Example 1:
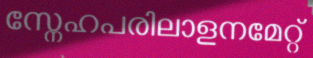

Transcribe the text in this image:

സ്നേഹപരിലാളനമേറ്റ്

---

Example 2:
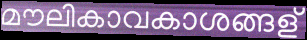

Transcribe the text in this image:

മൗലികാവകാശങ്ങള്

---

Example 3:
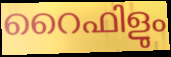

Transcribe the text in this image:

റൈഫിളും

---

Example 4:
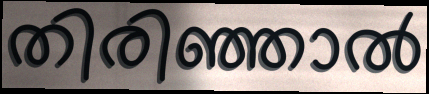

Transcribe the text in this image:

തിരിഞ്ഞാൽ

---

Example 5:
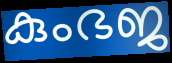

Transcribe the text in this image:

കുംഭജ